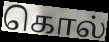
கொல்